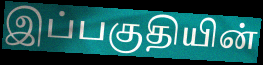
இப்பகுதியின்